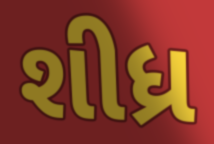
શીધ્ર